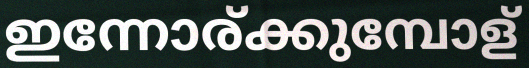
ഇന്നോര്ക്കുമ്പോള്